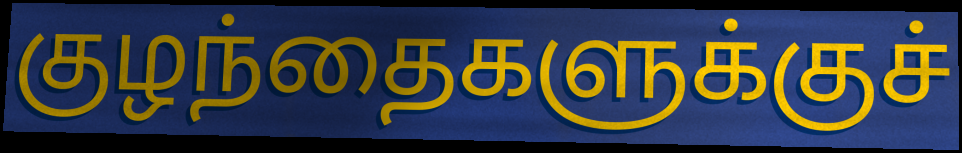
குழந்தைகளுக்குச்